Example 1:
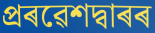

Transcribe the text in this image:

প্ৰৰৱেশদ্বাৰৰ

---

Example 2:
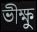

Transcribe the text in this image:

ভীক্ষু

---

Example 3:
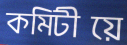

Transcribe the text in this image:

কমিটীয়ে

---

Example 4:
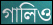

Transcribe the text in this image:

গালিও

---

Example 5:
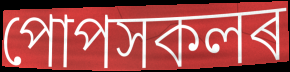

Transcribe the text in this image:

পোপসকলৰ